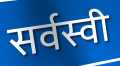
सर्वस्वी